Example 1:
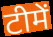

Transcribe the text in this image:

टीमें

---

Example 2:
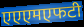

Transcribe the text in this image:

एएएमएफटी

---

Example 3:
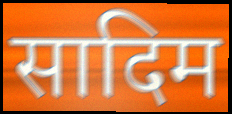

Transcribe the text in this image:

सादिम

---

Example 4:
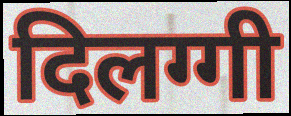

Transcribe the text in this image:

दिलग्गी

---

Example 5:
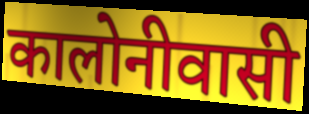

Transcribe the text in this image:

कालोनीवासी